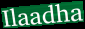
Ilaadha